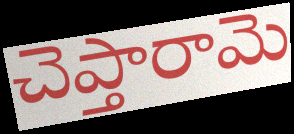
చెప్తారామె